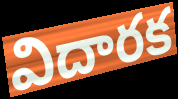
విదారక